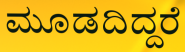
ಮೂಡದಿದ್ದರೆ